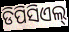
ଡିପିସିଏଲ୍